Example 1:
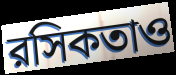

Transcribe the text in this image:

রসিকতাও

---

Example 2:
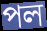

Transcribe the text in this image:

পল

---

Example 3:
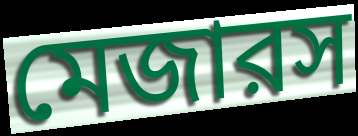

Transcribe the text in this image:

মেজারস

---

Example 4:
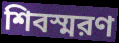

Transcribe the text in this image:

শিবস্মরণ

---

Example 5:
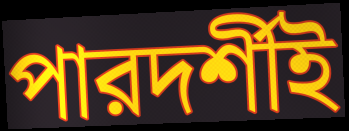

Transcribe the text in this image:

পারদর্শীই